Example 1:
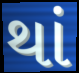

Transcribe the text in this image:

થાં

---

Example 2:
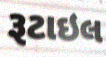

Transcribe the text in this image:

રૂટાઇલ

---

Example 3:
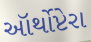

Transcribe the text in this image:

ઑર્થોપ્ટેરા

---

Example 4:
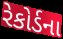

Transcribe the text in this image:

રેકોર્ડના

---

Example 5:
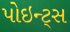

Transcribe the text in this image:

પોઇન્ટ્સ